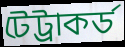
টেট্ৰাকৰ্ড